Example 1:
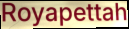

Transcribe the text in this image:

Royapettah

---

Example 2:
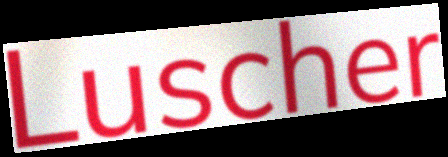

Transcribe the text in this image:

Luscher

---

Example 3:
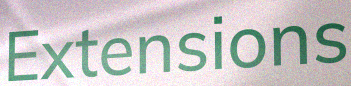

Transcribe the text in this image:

Extensions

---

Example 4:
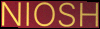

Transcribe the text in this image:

NIOSH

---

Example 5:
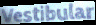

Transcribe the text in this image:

Vestibular